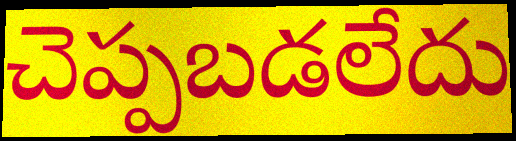
చెప్పబడలేదు